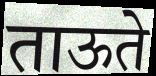
ताऊते